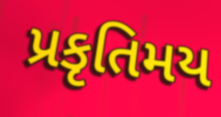
પ્રકૃતિમય